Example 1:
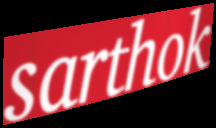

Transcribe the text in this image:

sarthok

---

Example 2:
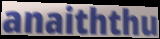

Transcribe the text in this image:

anaiththu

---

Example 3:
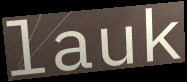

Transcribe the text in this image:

lauk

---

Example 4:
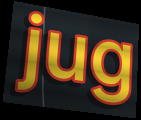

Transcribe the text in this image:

jug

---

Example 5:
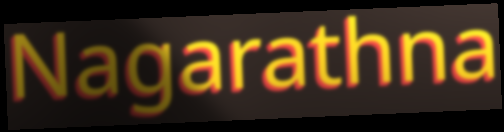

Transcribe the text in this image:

Nagarathna